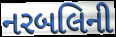
નરબલિની